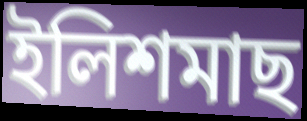
ইলিশমাছ